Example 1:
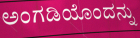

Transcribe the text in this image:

ಅಂಗಡಿಯೊಂದನ್ನು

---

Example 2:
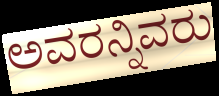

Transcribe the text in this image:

ಅವರನ್ನಿವರು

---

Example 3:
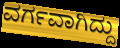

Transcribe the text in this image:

ವರ್ಗವಾಗಿದ್ದು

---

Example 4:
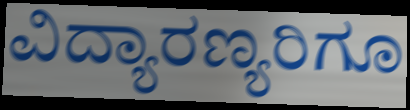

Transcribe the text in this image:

ವಿದ್ಯಾರಣ್ಯರಿಗೂ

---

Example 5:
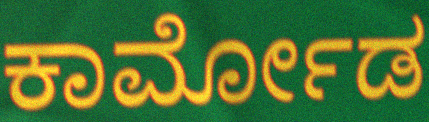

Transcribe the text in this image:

ಕಾರ್ಮೋಡ